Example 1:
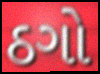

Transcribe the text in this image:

ઠગો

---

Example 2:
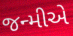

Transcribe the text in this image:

જન્મીએ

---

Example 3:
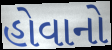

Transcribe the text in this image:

હોવાનો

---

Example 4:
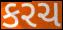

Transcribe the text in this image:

કરચ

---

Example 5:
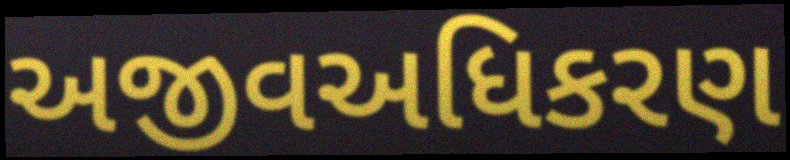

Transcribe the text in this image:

અજીવઅધિકરણ